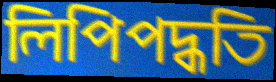
লিপিপদ্ধতি